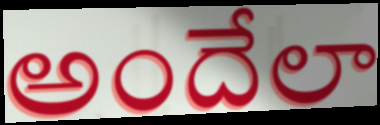
అందేలా